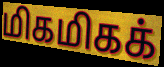
மிகமிகக்